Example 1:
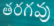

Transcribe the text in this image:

తరగవు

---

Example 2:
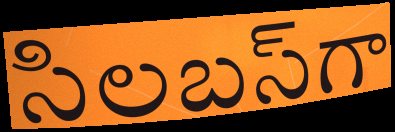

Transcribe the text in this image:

సిలబస్‌గా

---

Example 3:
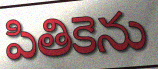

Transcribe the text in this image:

పితికెను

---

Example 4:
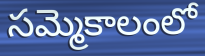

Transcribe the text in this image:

సమ్మెకాలంలో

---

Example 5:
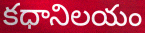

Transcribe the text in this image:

కధానిలయం